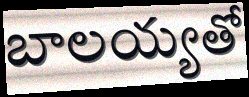
బాలయ్యతో